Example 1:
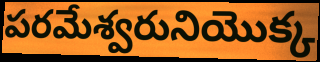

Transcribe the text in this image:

పరమేశ్వరునియొక్క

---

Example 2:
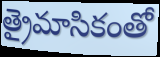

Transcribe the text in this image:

త్రైమాసికంతో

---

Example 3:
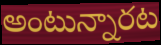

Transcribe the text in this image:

అంటున్నారట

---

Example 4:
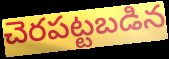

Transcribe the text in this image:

చెరపట్టబడిన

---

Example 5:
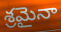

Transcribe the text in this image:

శ్రమైనా